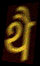
थै